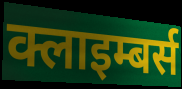
क्लाइम्बर्स